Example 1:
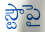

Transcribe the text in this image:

స్టౌపై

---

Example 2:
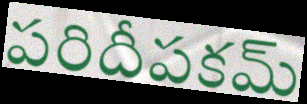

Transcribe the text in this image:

పరిదీపకమ్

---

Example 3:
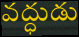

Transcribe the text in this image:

వద్ధుడు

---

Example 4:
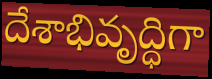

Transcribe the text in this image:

దేశాభివృద్ధిగా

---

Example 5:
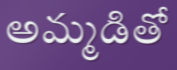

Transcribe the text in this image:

అమ్మడితో